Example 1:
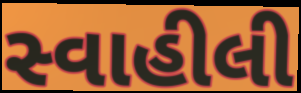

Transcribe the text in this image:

સ્વાહીલી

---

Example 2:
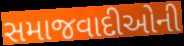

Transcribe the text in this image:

સમાજવાદીઓની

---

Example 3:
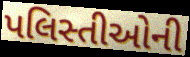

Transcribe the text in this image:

પલિસ્તીઓની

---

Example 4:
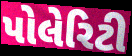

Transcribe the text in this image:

પોલેરિટી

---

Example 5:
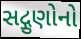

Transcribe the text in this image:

સદ્ગુણોનો